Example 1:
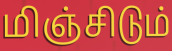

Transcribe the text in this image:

மிஞ்சிடும்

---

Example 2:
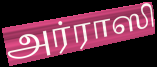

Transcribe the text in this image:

அர்ராஸி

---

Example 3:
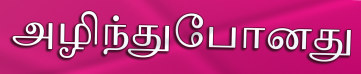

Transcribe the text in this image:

அழிந்துபோனது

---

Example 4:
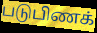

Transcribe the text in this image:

படுபிணக்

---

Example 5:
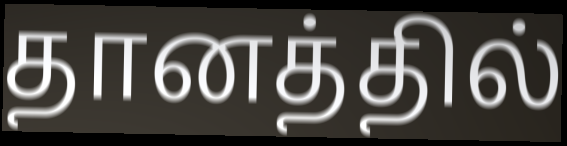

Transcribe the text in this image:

தானத்தில்